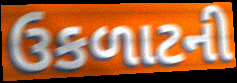
ઉકળાટની